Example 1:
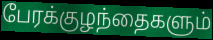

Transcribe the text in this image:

பேரக்குழந்தைகளும்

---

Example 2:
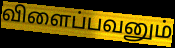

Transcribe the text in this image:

விளைப்பவனும்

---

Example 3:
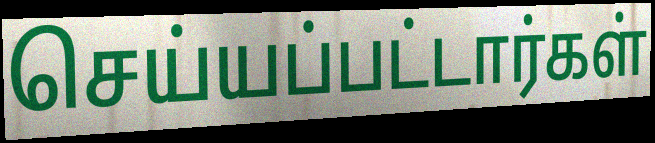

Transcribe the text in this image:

செய்யப்பட்டார்கள்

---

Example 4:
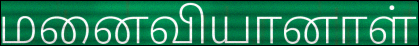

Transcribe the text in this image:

மனைவியானாள்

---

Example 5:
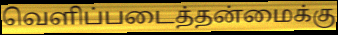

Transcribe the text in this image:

வெளிப்படைத்தன்மைக்கு